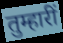
तुम्हारीं